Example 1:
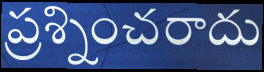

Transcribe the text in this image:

ప్రశ్నించరాదు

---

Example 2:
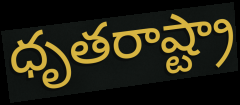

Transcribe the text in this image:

ధృతరాష్ట్రా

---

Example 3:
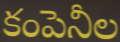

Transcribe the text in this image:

కంపెనీల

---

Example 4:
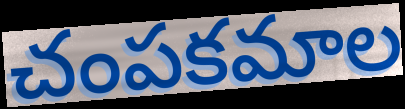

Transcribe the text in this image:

చంపకమాల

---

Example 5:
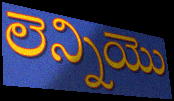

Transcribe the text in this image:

లెన్నియొ